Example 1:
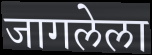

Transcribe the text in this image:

जागलेला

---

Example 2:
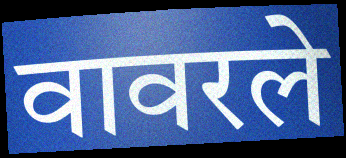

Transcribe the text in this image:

वावरले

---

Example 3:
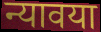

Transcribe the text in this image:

न्यावया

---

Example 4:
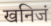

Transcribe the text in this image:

खनिजं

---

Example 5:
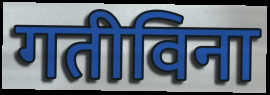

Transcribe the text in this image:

गतीविना